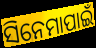
ସିନେମାପାଇଁ